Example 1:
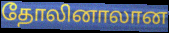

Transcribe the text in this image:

தோலினாலான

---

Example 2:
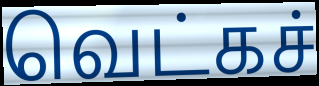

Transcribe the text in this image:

வெட்கச்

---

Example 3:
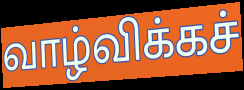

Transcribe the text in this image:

வாழ்விக்கச்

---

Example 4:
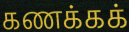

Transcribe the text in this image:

கணக்கக்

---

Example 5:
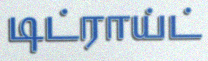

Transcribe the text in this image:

டிட்ராய்ட்